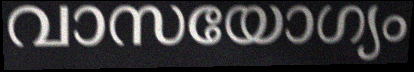
വാസയോഗ്യം